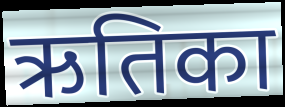
ऋतिका